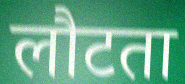
लौटता